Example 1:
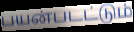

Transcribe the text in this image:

பயன்படட்டும்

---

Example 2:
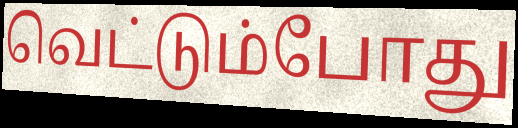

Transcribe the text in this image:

வெட்டும்போது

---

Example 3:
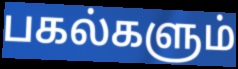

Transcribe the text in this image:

பகல்களும்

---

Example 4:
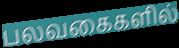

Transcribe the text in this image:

பலவகைகளில்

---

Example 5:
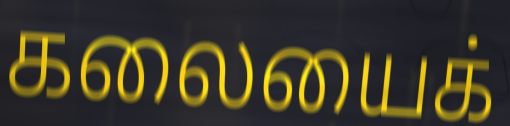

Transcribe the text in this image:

கலையைக்